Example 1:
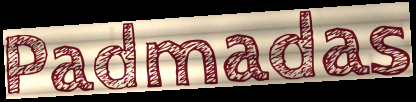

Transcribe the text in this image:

Padmadas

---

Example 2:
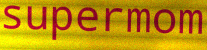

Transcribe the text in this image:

supermom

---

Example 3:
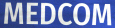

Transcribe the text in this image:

MEDCOM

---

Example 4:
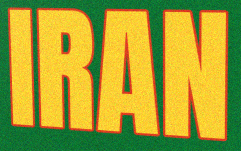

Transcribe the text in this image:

IRAN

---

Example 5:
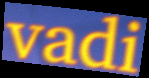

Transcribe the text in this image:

vadi